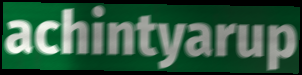
achintyarup